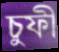
চুফী